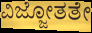
ವಿಜ್ಜೋತತೇ